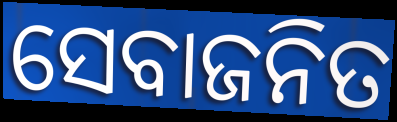
ସେବାଜନିତ